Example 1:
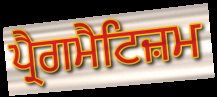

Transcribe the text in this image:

ਪ੍ਰੈਗਮੈਟਿਜ਼ਮ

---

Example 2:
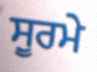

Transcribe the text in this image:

ਸੂਰਮੇ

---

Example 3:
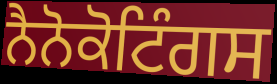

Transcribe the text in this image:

ਨੈਨੋਕੋਟਿੰਗਸ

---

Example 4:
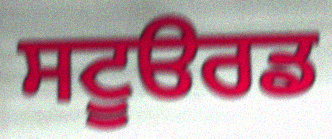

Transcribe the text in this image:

ਸਟੂੳਰਡ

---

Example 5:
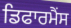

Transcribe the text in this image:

ਡਿਫਾਰਮੈਂਸ